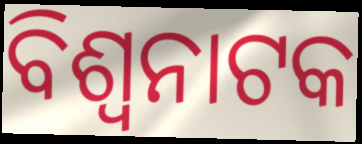
ବିଶ୍ୱନାଟକ